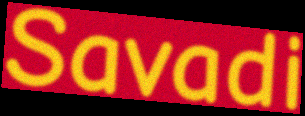
Savadi